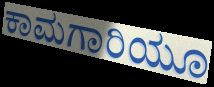
ಕಾಮಗಾರಿಯೂ